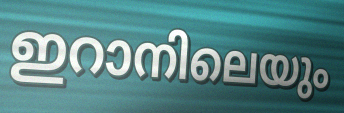
ഇറാനിലെയും